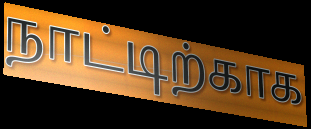
நாட்டிற்காக